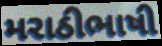
મરાઠીભાષી